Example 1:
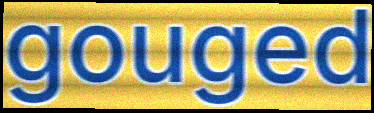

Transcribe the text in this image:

gouged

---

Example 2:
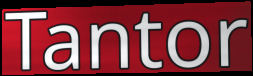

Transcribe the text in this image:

Tantor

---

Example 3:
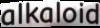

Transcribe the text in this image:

alkaloid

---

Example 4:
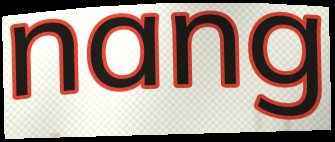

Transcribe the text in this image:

nang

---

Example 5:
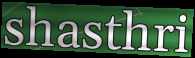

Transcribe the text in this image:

shasthri